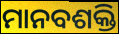
ମାନବଶକ୍ତି